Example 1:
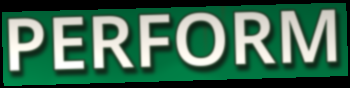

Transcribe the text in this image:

PERFORM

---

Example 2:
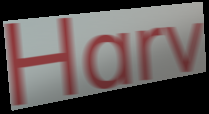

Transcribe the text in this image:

Harv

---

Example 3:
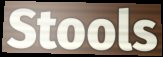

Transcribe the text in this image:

Stools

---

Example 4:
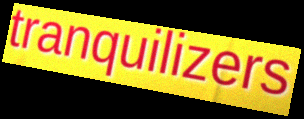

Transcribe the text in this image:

tranquilizers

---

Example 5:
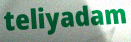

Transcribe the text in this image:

teliyadam